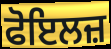
ਫੋਇਲਜ਼